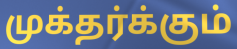
முக்தர்க்கும்